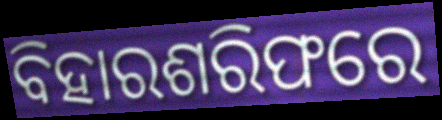
ବିହାରଶରିଫରେ